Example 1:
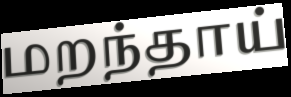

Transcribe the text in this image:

மறந்தாய்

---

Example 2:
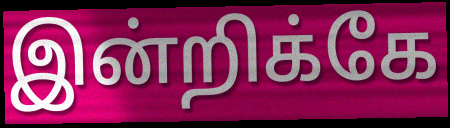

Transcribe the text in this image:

இன்றிக்கே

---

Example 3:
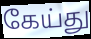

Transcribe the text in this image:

கேய்து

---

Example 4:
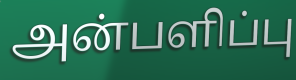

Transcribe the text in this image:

அன்பளிப்பு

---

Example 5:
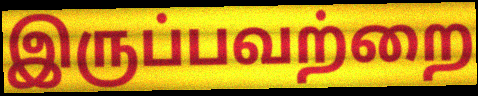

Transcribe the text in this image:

இருப்பவற்றை